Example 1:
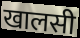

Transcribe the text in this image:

खालसी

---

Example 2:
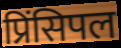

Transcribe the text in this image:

प्रिंसिपल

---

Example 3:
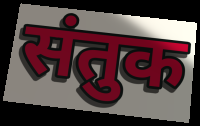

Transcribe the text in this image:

संतुक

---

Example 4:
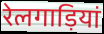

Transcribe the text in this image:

रेलगाड़ियां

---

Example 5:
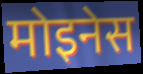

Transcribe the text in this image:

मोइनेस